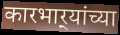
कारभार्यांच्या